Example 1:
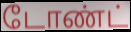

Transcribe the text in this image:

டோண்ட்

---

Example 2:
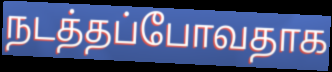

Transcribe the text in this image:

நடத்தப்போவதாக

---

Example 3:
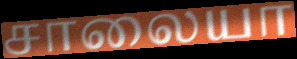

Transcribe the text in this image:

சாலையா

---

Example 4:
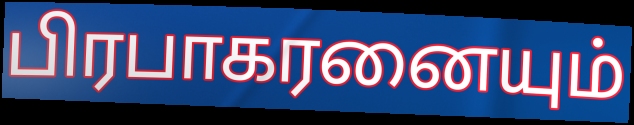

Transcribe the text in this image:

பிரபாகரனையும்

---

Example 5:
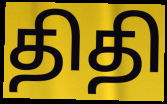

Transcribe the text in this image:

திதி